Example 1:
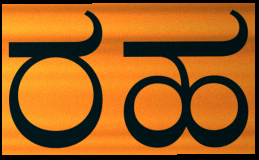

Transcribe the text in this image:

ರಹ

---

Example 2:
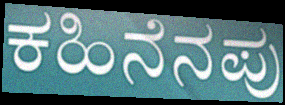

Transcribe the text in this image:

ಕಹಿನೆನಪು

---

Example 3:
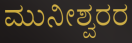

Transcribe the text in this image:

ಮುನೀಶ್ವರರ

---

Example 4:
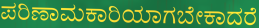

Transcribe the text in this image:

ಪರಿಣಾಮಕಾರಿಯಾಗಬೇಕಾದರೆ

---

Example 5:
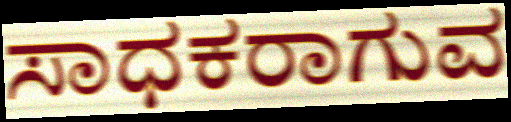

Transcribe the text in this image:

ಸಾಧಕರಾಗುವ